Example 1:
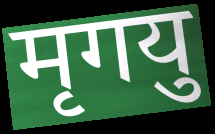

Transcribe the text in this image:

मृगयु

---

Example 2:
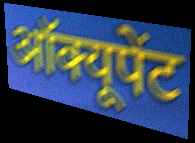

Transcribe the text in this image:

ऑक्यूपेंट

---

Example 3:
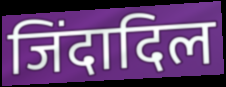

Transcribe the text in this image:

जिंदादिल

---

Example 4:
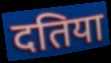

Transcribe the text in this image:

दतिया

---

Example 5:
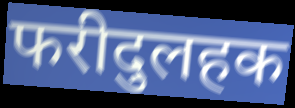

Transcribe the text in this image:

फरीदुलहक